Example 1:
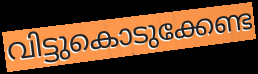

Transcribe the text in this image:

വിട്ടുകൊടുക്കേണ്ട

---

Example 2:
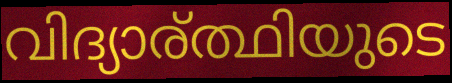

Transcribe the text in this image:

വിദ്യാര്ത്ഥിയുടെ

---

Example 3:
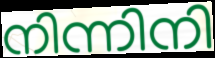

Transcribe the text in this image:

നിന്നിനി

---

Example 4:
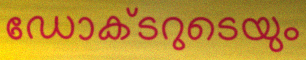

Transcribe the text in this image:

ഡോക്ടറുടെയും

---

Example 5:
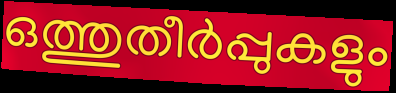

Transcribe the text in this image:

ഒത്തുതീർപ്പുകളും